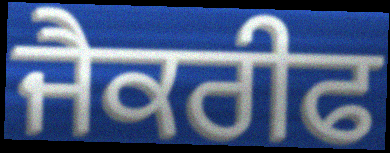
ਜੈਕਰੀਫ